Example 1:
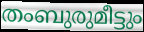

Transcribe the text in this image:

തംബുരുമീട്ടും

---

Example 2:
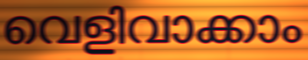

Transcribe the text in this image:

വെളിവാക്കാം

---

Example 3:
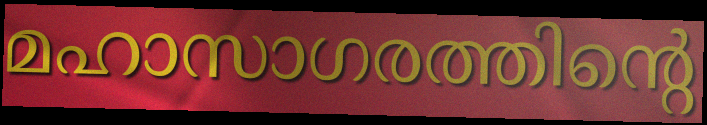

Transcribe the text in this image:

മഹാസാഗരത്തിന്റെ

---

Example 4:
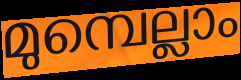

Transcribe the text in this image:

മുമ്പെല്ലാം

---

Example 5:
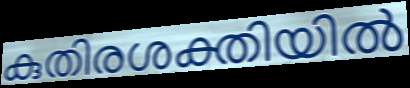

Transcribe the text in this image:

കുതിരശക്തിയിൽ